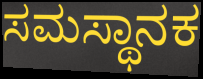
ಸಮಸ್ಥಾನಕ